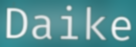
Daike